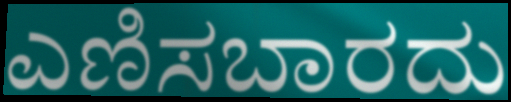
ಎಣಿಸಬಾರದು